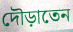
দৌড়াতেন